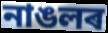
নাঙলৰ